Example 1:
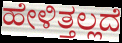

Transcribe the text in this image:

ಹೇಳಿತ್ತಲ್ಲದೆ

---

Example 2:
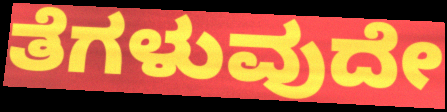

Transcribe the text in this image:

ತೆಗಳುವುದೇ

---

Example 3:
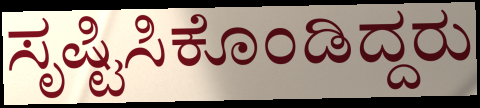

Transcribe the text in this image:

ಸೃಷ್ಟಿಸಿಕೊಂಡಿದ್ದರು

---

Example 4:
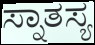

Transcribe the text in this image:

ಸ್ನಾತಸ್ಯ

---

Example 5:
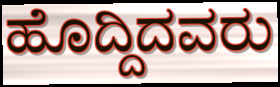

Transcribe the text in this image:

ಹೊದ್ದಿದವರು